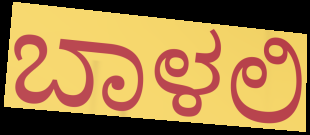
ಬಾಳಲಿ